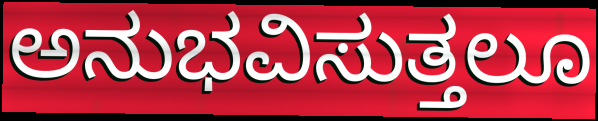
ಅನುಭವಿಸುತ್ತಲೂ